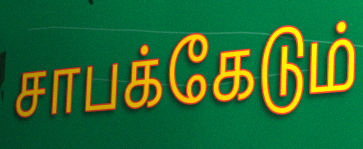
சாபக்கேடும்